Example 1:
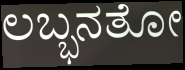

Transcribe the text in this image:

ಲಬ್ಭನತೋ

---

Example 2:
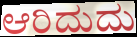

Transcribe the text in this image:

ಆರಿದುದು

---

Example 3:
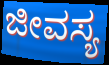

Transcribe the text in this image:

ಜೀವಸ್ಯ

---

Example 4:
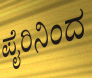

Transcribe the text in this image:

ಪೈರಿನಿಂದ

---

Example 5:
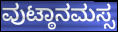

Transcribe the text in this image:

ವುಟ್ಠಾನಮಸ್ಸ